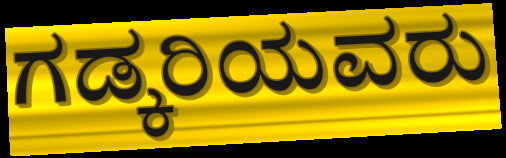
ಗಡ್ಕರಿಯವರು